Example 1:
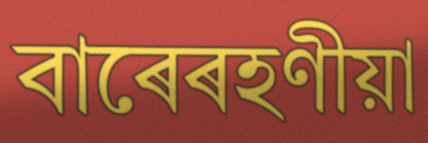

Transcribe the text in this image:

বাৰেৰহণীয়া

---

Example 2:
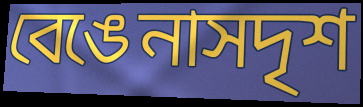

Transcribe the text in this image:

বেঙেনাসদৃশ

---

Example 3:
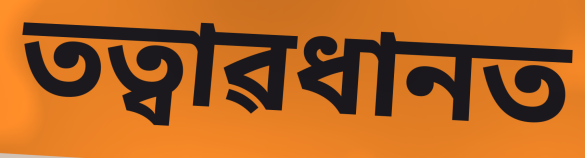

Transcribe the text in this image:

তত্বাৱধানত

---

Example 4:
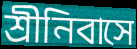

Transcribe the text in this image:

শ্ৰীনিবাসে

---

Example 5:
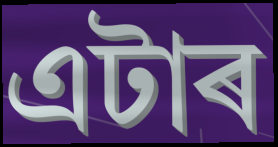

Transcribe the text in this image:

এটাৰ